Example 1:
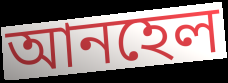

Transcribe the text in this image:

আনহেল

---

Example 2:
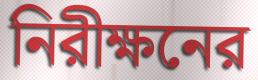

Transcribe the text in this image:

নিরীক্ষনের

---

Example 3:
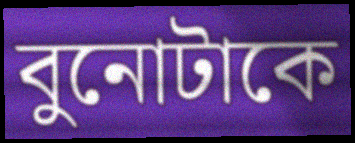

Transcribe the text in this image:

বুনোটাকে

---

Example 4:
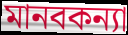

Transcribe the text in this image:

মানবকন্যা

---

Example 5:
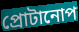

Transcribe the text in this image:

প্রোটানোপ